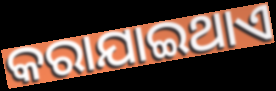
କରାଯାଇଥାଏ